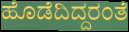
ಹೊಡೆದಿದ್ದರಂತೆ